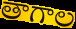
తాగాల